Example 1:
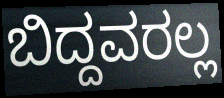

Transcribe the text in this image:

ಬಿದ್ದವರಲ್ಲ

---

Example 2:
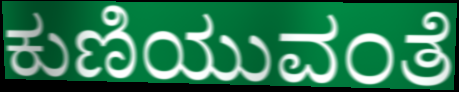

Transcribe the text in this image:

ಕುಣಿಯುವಂತೆ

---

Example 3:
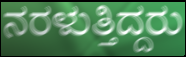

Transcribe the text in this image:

ನರಳುತ್ತಿದ್ದರು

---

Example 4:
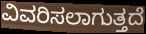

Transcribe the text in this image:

ವಿವರಿಸಲಾಗುತ್ತದೆ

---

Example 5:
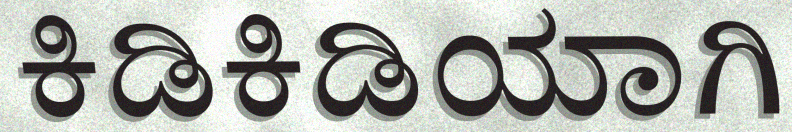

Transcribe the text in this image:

ಕಿಡಿಕಿಡಿಯಾಗಿ